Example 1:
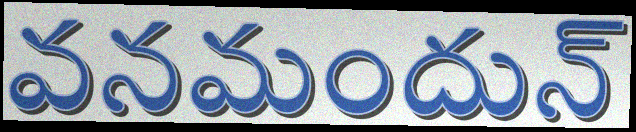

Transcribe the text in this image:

వనమందున్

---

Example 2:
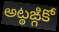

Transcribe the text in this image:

అట్ఠఙ్గికో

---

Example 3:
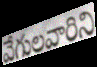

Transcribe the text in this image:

వేగులవారిని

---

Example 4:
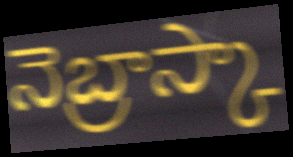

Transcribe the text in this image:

నెబ్రాస్కా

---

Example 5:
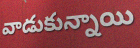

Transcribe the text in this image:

వాడుకున్నాయి